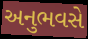
અનુભવસે